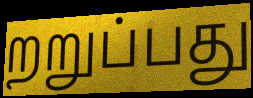
றறுப்பது